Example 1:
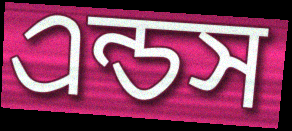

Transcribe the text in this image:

এন্ডস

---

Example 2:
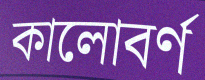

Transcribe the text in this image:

কালোবর্ণ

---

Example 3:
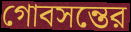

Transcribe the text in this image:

গোবসন্তের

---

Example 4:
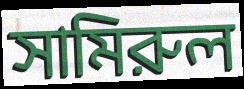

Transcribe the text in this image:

সামিরুল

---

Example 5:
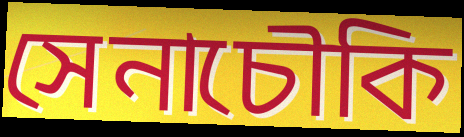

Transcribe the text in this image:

সেনাচৌকি